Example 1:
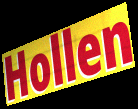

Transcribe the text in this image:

Hollen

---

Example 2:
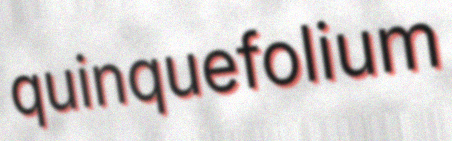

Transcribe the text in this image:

quinquefolium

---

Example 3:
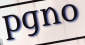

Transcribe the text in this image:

pgno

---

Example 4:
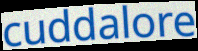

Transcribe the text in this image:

cuddalore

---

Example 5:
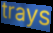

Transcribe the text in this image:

trays